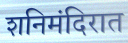
शनिमंदिरात